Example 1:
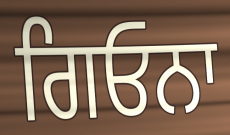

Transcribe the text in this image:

ਗਿਓਨਾ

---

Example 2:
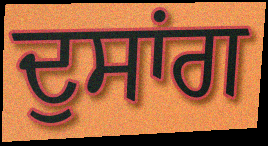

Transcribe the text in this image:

ਦੁਸਾਂਗ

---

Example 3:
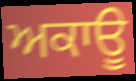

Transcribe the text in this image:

ਅਕਾਊ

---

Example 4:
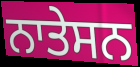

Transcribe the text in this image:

ਨਾਤੇਸਨ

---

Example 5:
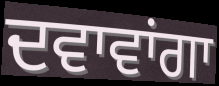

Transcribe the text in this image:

ਦਵਾਵਾਂਗਾ